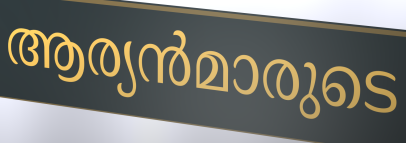
ആര്യൻമാരുടെ